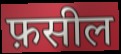
फ़सील